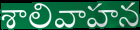
శాలివాహన